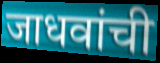
जाधवांची